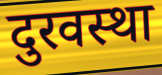
दुरवस्था